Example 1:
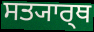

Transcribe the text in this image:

ਸਤ੍ਯਾਰ੍ਥ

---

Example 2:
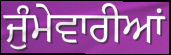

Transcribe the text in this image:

ਜੁੰਮੇਵਾਰੀਆਂ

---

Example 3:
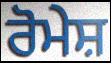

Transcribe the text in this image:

ਰੋਮੇਸ਼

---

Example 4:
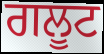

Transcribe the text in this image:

ਗਲੂਟ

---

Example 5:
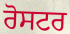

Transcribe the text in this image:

ਰੋਸਟਰ